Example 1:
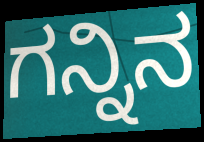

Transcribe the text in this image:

ಗನ್ನಿನ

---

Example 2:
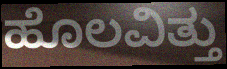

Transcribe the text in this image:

ಹೊಲವಿತ್ತು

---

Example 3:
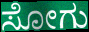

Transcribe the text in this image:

ಸೋಗು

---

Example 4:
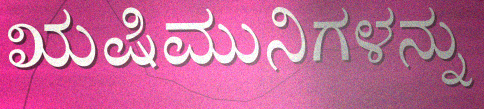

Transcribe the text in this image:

ಋಷಿಮುನಿಗಳನ್ನು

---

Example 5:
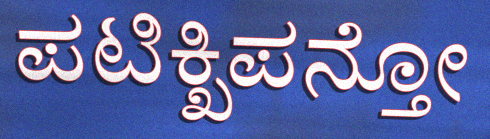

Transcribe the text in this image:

ಪಟಿಕ್ಖಿಪನ್ತೋ